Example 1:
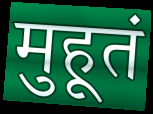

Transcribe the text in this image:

मुहूतं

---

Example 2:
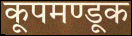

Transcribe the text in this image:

कूपमण्डूक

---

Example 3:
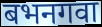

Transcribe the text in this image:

बभनगवा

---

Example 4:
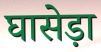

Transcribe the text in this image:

घासेड़ा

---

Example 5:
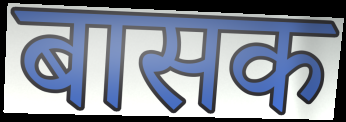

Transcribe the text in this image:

बासक